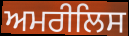
ਅਮਰੀਲਿਸ